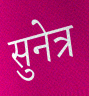
सुनेत्र